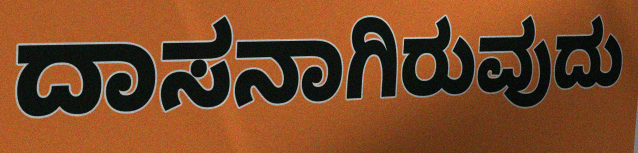
ದಾಸನಾಗಿರುವುದು